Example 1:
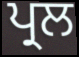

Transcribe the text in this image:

ਪ੍ਰਲ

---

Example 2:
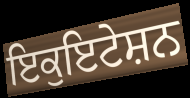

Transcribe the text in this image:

ਇਕੁਇਟੇਸ਼ਨ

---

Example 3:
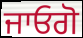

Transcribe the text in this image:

ਜਾਓਗੋ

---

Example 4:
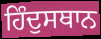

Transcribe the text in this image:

ਹਿੰਦੁਸਥਾਨ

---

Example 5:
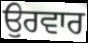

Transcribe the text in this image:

ਉਰਵਾਰ